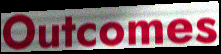
Outcomes